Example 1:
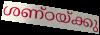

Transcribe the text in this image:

ശണ്ഠയ്ക്കു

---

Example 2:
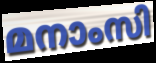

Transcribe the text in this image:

മനാംസി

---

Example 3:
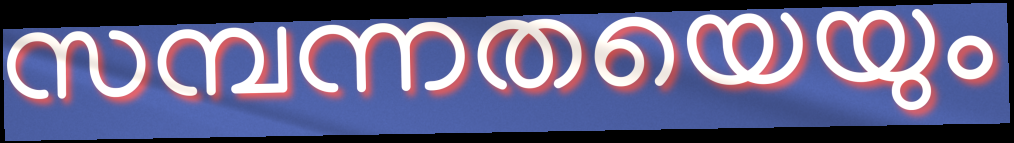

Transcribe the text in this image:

സമ്പന്നതയെയും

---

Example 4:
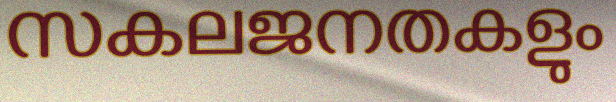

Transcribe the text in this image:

സകലജനതകളും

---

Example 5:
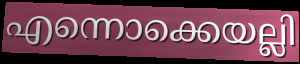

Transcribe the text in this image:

എന്നൊക്കെയല്ലി